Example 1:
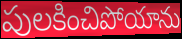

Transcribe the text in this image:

పులకించిపోయాను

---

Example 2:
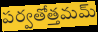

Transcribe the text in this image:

పర్వతోత్తమమ్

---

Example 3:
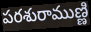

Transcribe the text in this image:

పరశురాముణ్ణి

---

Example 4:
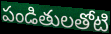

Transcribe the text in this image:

పండితులతోటి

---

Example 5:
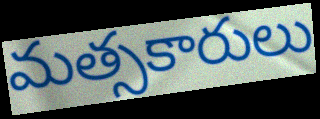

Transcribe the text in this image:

మత్సకారులు